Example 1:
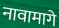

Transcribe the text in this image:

नावामागे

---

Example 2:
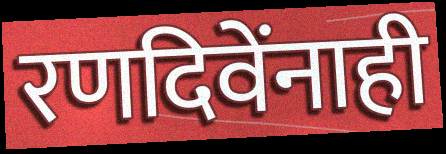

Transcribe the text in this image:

रणदिवेंनाही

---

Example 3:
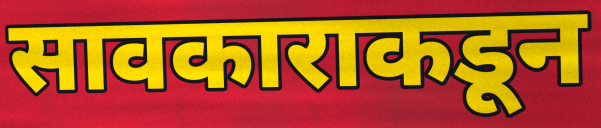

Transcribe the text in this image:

सावकाराकडून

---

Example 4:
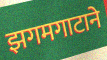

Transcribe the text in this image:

झगमगाटाने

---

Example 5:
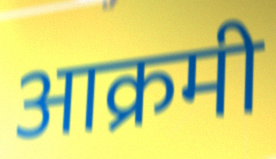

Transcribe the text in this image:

आक्रमी